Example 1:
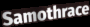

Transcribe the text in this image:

Samothrace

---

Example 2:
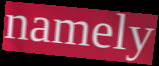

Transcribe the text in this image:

namely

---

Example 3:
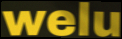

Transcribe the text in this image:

welu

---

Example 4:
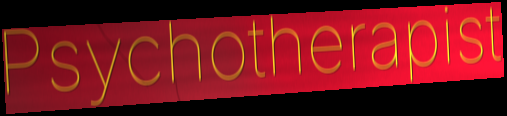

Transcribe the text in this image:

Psychotherapist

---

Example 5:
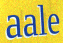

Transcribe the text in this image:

aale